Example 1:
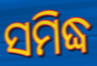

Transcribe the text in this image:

ସମିଦ୍ଧ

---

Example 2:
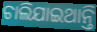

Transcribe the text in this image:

ଚାଲିଯାଇଥାନ୍ତି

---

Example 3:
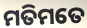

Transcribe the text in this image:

ମତିମତେ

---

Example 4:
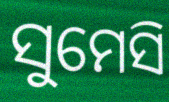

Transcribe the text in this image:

ସୁମେସି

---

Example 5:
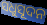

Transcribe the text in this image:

ସଧୁସୂଦନ